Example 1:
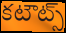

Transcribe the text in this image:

కటౌట్స్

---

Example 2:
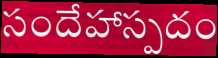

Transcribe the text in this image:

సందేహాస్పదం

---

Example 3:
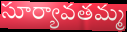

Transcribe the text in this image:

సూర్యావతమ్మ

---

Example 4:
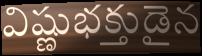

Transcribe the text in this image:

విష్ణుభక్తుడైన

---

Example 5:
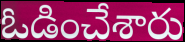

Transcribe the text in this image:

ఓడించేశారు